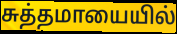
சுத்தமாயையில்